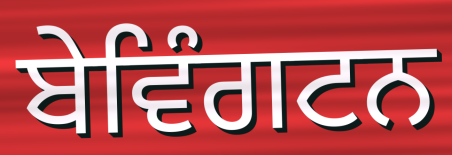
ਬੇਵਿੰਗਟਨ